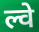
ल्वे